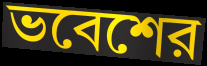
ভবেশের